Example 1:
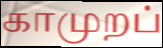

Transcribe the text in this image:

காமுறப்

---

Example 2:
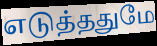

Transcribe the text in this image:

எடுத்ததுமே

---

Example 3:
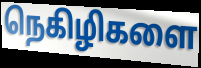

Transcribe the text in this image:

நெகிழிகளை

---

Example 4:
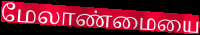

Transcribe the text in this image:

மேலாண்மையை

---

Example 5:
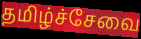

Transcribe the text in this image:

தமிழ்ச்சேவை